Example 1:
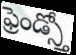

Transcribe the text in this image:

ఫ్రెండ్స్తో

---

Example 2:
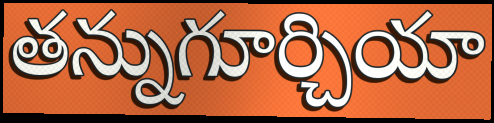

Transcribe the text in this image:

తన్నుగూర్చియా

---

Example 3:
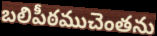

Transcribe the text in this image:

బలిపీఠముచెంతను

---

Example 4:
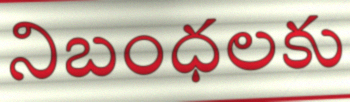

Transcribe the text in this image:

నిబంధలకు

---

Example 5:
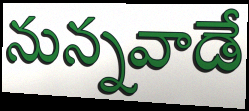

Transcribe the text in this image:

నున్నవాడే